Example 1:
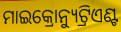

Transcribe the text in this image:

ମାଇକ୍ରୋନ୍ୟୁଟ୍ରିଏଣ୍ଟ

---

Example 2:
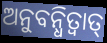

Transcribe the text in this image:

ଅନୁବନ୍ଧିତ୍ଵାତ୍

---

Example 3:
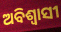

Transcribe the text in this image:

ଅବିଶ୍ଵାସୀ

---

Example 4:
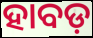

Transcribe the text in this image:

ହାବଡ଼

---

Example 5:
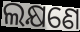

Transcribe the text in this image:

ଲକ୍ଷଣେ